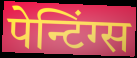
पेन्टिंग्स